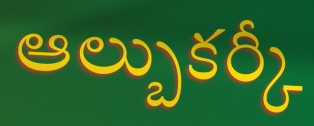
ఆల్బుకర్కీ